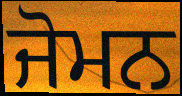
ਜੋਮਨ